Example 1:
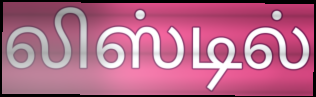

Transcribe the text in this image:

லிஸ்டில்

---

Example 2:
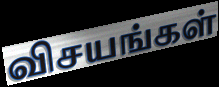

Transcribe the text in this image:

விசயங்கள்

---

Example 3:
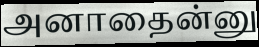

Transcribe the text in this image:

அனாதைன்னு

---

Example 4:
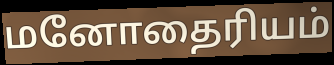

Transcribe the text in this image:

மனோதைரியம்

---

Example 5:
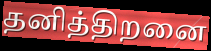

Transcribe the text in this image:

தனித்திறனை